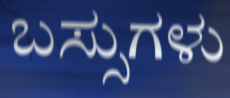
ಬಸ್ಸುಗಳು